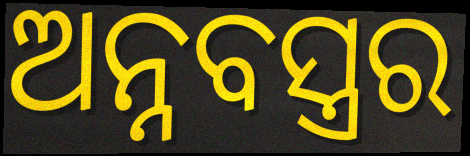
ଅନ୍ନବସ୍ତ୍ରର